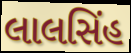
લાલસિંહ